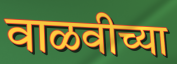
वाळवीच्या